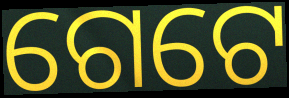
ଗେଟେ